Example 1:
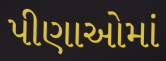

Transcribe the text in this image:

પીણાઓમાં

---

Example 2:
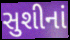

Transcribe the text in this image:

સુશીનાં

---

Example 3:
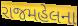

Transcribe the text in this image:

રાજમહેલના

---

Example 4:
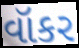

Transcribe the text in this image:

વૉકર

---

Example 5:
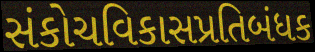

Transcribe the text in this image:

સંકોચવિકાસપ્રતિબંધક